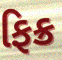
ફિક્ર